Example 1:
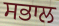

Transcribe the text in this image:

ਸਭਾਲ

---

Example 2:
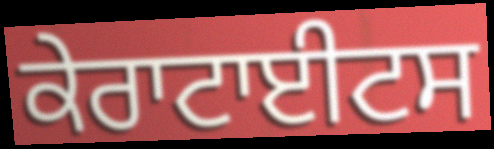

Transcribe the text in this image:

ਕੇਰਾਟਾਈਟਸ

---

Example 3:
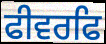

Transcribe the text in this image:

ਫੀਵਰਫਿ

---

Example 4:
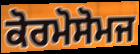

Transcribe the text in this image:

ਕੋਰਮੋਸੋਮਜ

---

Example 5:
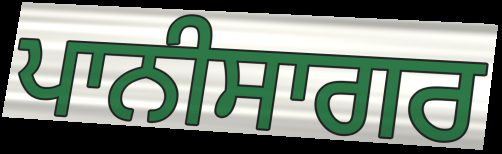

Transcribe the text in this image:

ਪਾਨੀਸਾਗਰ